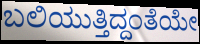
ಬಲಿಯುತ್ತಿದ್ದಂತೆಯೇ